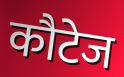
कौटेज